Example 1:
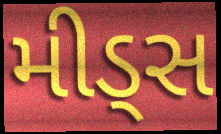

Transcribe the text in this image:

મીડ્સ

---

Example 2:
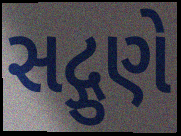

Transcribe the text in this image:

સદ્ગુણે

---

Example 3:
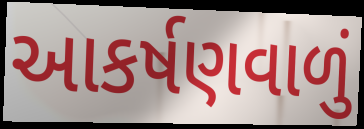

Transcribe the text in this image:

આકર્ષણવાળું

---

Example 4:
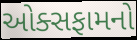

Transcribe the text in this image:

ઓક્સફામનો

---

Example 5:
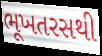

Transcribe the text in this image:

ભૂખતરસથી